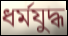
ধর্মযুদ্ধ